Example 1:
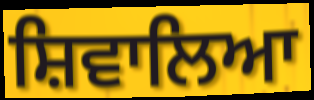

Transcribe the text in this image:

ਸ਼ਿਵਾਲਿਆ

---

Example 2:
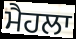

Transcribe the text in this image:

ਮੈਹਲਾ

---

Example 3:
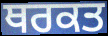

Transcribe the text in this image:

ਥਰਕਤ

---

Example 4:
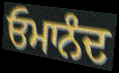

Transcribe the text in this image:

ਓਮਾਨੰਦ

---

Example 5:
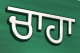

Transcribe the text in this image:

ਚਾਹਾ